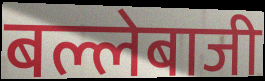
बल्लेबाजी